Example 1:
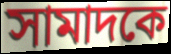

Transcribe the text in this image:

সামাদকে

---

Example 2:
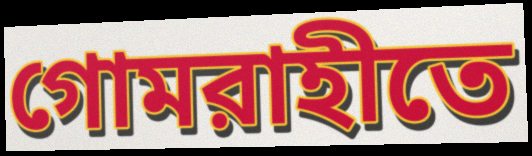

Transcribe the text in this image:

গোমরাহীতে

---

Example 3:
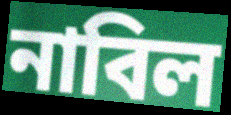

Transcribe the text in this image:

নাবিল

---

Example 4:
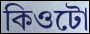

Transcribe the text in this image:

কিওটো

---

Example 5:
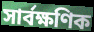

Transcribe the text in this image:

সার্বক্ষণিক